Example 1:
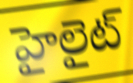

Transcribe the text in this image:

హైలైట్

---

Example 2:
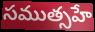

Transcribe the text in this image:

సముత్సహే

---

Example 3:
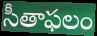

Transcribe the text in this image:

సీతాఫలం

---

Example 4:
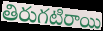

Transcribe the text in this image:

తిరుగటిరాయి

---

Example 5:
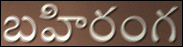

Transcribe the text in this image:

బహిరంగ